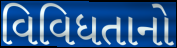
વિવિધતાનો